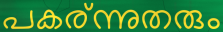
പകര്ന്നുതരും